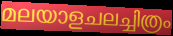
മലയാളചലച്ചിത്രം